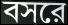
বসরে